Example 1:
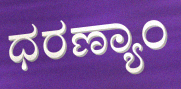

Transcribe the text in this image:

ಧರಣ್ಯಾಂ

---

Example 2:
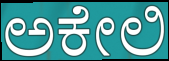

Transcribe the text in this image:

ಅಕೇಲಿ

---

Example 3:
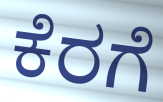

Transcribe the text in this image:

ಕೆರಗೆ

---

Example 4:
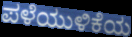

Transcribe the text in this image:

ಪಳೆಯುಳಿಕೆಯ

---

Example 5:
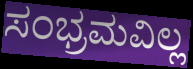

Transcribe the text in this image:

ಸಂಭ್ರಮವಿಲ್ಲ